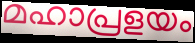
മഹാപ്രളയം